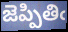
జెప్పితిఁ